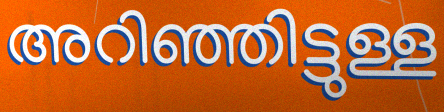
അറിഞ്ഞിട്ടുള്ള